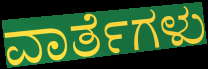
ವಾರ್ತೆಗಳು